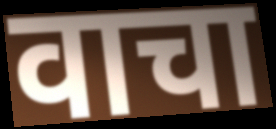
वाचा